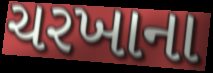
ચરખાના